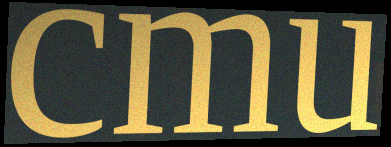
cmu